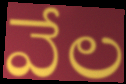
వేల